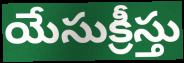
యేసుక్రీస్తు